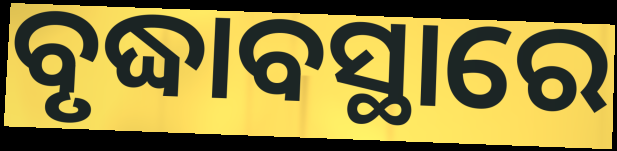
ବୃଦ୍ଧାବସ୍ଥାରେ